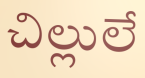
చిల్లులే